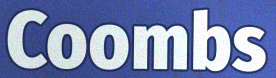
Coombs